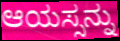
ಆಯಸ್ಸನ್ನು